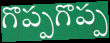
గొప్పగొప్ప